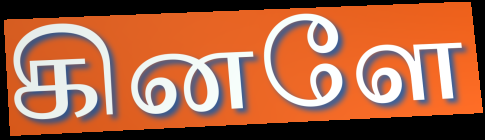
கினளே